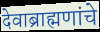
देवाब्राह्मणांचे